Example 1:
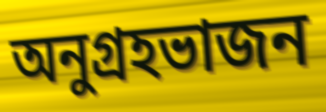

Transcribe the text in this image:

অনুগ্রহভাজন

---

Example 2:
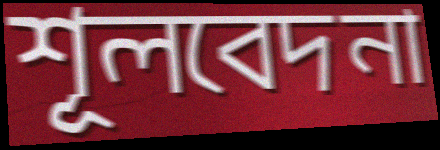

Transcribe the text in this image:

শূলবেদনা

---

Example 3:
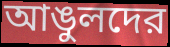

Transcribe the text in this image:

আঙুলদের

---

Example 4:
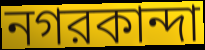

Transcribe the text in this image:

নগরকান্দা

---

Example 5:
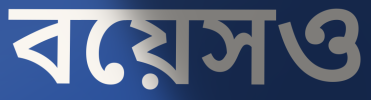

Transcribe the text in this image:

বয়েসও